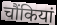
चौंकियां